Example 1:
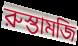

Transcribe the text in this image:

রুস্তামজি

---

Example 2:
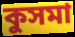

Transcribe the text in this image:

কুসমা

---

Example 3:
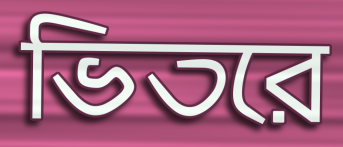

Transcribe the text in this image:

ভিতরে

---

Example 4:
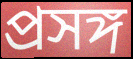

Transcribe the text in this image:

প্রসঙ্গ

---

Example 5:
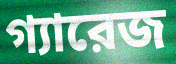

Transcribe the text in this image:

গ্যারেজ